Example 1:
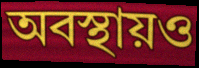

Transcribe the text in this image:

অবস্থায়ও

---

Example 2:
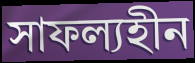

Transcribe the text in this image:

সাফল্যহীন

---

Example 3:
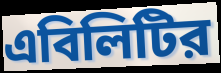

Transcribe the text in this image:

এবিলিটির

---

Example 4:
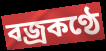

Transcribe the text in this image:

বজ্রকণ্ঠে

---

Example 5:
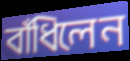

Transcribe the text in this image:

বাঁধিলেন